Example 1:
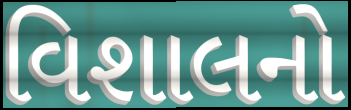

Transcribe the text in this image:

વિશાલનો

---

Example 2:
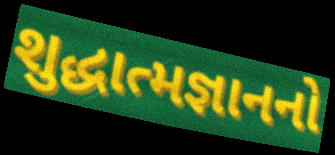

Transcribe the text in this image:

શુદ્ધાત્મજ્ઞાનનો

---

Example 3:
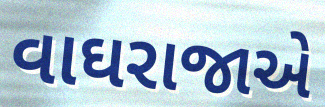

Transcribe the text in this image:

વાઘરાજાએ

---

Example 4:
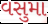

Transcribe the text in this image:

વસુમા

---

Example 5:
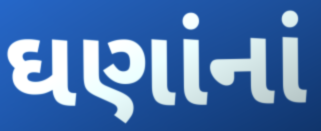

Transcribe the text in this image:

ઘણાંનાં